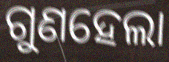
ଗୁଣହେଲା